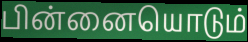
பின்னையொடும்